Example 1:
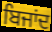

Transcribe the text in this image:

ਬਿਜਾਂਦ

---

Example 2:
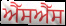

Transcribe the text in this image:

ਐੱਸਐੱਸ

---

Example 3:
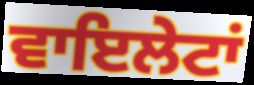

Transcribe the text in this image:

ਵਾਇਲੇਟਾਂ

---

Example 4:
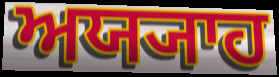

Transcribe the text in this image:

ਅਯ੍ਯਾਹ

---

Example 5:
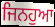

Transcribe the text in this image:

ਜਿਨਹੁਆ